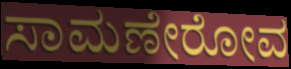
ಸಾಮಣೇರೋವ